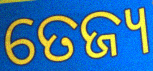
ତେଜ୍ୟ